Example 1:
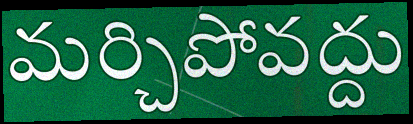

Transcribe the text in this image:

మర్చిపోవద్దు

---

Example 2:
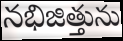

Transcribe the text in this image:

నభిజిత్తును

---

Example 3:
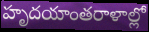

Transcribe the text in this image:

హృదయాంతరాళాల్లో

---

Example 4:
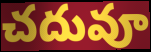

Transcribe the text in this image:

చదువూ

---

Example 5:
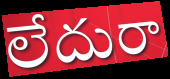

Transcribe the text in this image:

లేదురా